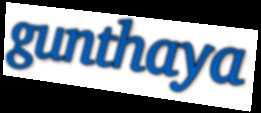
gunthaya